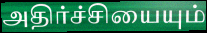
அதிர்ச்சியையும்